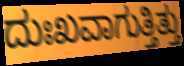
ದುಃಖವಾಗುತ್ತಿತ್ತು